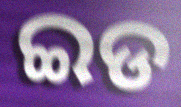
ଇଡ